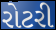
રોટરી